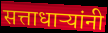
सत्ताधाऱ्यांनी